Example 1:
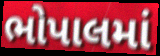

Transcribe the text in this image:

ભોપાલમાં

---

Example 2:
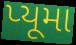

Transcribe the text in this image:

પ્યૂમા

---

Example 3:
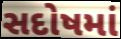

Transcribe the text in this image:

સદોષમાં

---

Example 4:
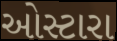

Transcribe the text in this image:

ઓસ્ટારા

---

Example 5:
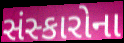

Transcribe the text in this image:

સંસ્કારોના